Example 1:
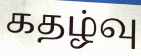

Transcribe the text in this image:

கதழ்வு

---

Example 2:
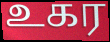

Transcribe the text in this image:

உகர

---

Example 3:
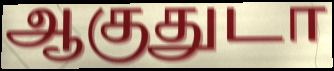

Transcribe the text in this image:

ஆகுதுடா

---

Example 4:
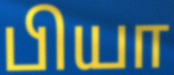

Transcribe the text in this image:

பியா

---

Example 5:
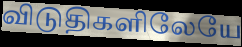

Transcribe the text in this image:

விடுதிகளிலேயே